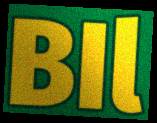
BIl